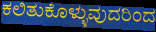
ಕಲಿತುಕೊಳ್ಳುವುದರಿಂದ